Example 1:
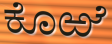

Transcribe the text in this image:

ಕೊಱೆ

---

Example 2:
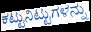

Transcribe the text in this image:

ಕಟ್ಟುನಿಟ್ಟುಗಳನ್ನು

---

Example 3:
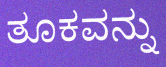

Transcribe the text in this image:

ತೂಕವನ್ನು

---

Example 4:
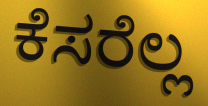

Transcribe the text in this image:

ಕೆಸರೆಲ್ಲ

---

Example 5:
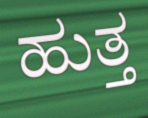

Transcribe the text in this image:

ಹುತ್ತ